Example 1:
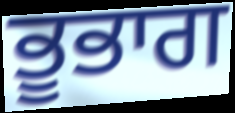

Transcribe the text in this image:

ਭੂਭਾਗ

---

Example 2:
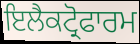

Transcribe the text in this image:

ਇਲੈਕਟ੍ਰੋਫਾਰਮ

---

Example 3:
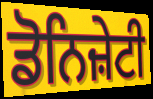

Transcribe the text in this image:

ਡੋਨਿਜ਼ੇਟੀ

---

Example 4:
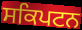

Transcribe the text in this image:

ਸਕਿਪਟਨ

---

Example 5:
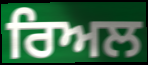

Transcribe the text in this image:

ਰਿਅਲ